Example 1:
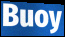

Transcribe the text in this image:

Buoy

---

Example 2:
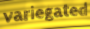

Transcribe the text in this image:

variegated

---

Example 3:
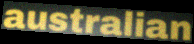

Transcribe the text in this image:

australian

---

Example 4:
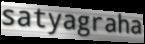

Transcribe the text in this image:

satyagraha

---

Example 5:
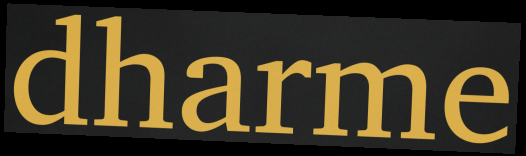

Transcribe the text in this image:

dharme